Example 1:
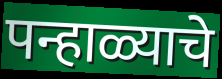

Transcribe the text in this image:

पन्हाळ्याचे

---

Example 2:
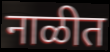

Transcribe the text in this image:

नाळीत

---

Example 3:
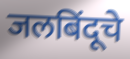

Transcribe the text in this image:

जलबिंदूचे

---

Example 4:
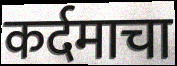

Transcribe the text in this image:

कर्दमाचा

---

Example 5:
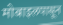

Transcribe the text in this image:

मोबाइलपासून